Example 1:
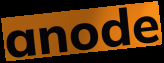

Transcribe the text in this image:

anode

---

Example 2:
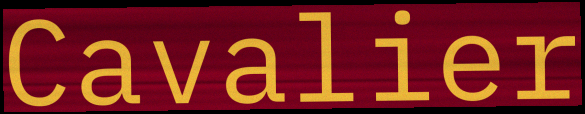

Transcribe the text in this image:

Cavalier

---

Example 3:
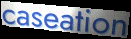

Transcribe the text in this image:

caseation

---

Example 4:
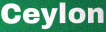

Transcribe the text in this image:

Ceylon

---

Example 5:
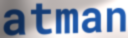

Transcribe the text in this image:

atman